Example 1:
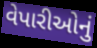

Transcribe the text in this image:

વેપારીઓનું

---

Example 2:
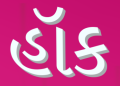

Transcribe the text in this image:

હૉક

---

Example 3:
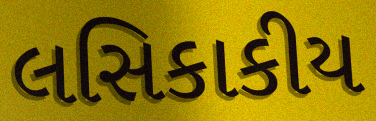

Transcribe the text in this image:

લસિકાકીય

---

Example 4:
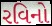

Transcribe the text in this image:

રવિનો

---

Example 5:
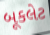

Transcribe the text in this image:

બૂકલેટ